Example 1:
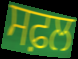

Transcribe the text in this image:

ਸਫ਼ਲ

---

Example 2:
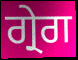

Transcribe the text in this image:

ਗ੍ਰੇਗ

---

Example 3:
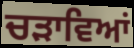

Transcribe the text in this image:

ਚੜਾਵਿਆਂ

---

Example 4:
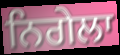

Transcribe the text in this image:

ਨਿਗੇਲਾ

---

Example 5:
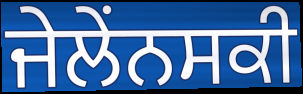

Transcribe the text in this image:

ਜੇਲੇਂਨਸਕੀ